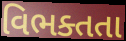
વિભક્તતા